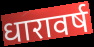
धारावर्ष